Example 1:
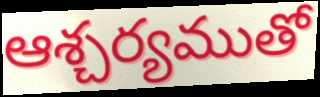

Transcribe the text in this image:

ఆశ్చర్యముతో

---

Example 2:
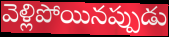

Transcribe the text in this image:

వెళ్లిపోయినప్పుడు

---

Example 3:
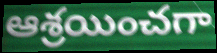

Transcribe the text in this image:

ఆశ్రయించగా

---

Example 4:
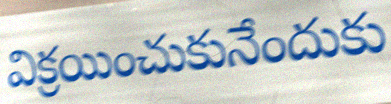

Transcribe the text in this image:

విక్రయించుకునేందుకు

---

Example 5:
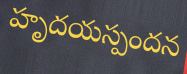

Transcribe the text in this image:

హృదయస్పందన